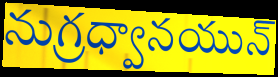
నుగ్రధ్వానయున్